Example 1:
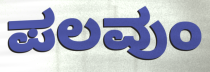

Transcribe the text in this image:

ಪಲವುಂ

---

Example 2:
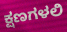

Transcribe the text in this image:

ಕ್ಷಣಗಳಲಿ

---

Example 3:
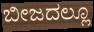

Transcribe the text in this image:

ಬೀಜದಲ್ಲೂ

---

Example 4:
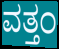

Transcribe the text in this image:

ವತ್ತಂ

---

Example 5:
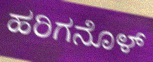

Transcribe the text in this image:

ಹರಿಗನೊಳ್